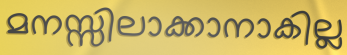
മനസ്സിലാക്കാനാകില്ല